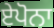
ਏਪੋਨਾ